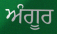
ਅੰਗੂਰ